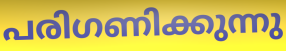
പരിഗണിക്കുന്നു